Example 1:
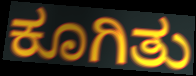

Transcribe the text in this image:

ಕೂಗಿತು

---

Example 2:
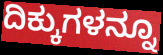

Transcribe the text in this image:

ದಿಕ್ಕುಗಳನ್ನೂ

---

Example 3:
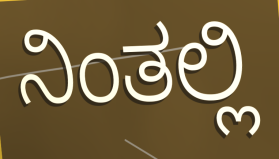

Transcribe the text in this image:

ನಿಂತಲ್ಲಿ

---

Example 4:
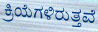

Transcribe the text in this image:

ಕ್ರಿಯೆಗಳಿರುತ್ತವೆ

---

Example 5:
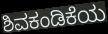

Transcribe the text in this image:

ಶಿವಕಂಡಿಕೆಯ